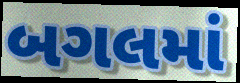
બગલમાં